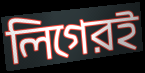
লিগেরই